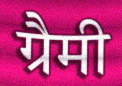
ग्रैमी